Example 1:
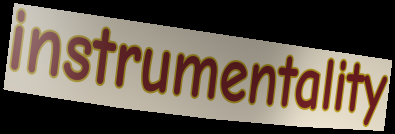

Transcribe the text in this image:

instrumentality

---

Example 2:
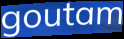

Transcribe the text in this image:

goutam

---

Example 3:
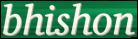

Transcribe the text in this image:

bhishon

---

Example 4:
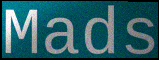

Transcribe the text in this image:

Mads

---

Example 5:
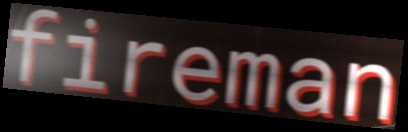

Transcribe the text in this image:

fireman